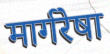
मार्गरेषा